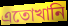
এতোখানি